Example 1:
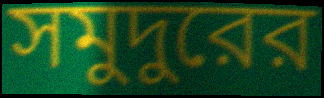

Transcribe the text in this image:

সমুদুরের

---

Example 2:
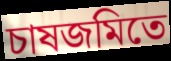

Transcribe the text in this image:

চাষজমিতে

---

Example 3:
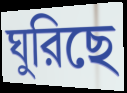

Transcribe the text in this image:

ঘুরিছে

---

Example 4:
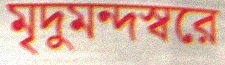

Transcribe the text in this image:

মৃদুমন্দস্বরে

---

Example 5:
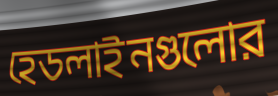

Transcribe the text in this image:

হেডলাইনগুলোর